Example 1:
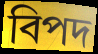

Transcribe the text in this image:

বিপদ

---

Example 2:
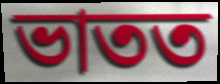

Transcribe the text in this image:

ভাতত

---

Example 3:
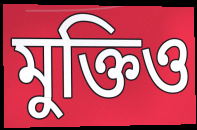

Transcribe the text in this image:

মুক্তিও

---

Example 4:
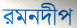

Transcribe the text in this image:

রমনদীপ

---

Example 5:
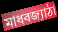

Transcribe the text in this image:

মাধবজ্যাঠা